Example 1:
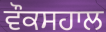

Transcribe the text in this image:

ਵੌਕਸਹਾਲ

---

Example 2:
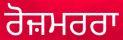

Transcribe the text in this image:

ਰੋਜ਼ਮਰਰਾ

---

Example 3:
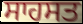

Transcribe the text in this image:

ਸਾਹਸਤ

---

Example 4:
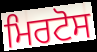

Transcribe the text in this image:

ਮਿਰਟੋਸ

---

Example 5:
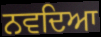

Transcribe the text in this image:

ਨਵਦਿਆ